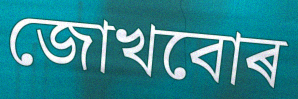
জোখবোৰ